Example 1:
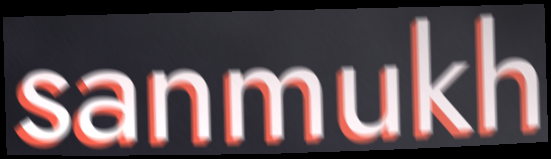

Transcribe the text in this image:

sanmukh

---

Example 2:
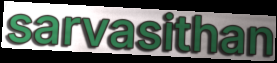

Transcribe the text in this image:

sarvasithan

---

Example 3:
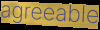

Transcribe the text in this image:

agreeable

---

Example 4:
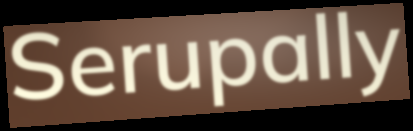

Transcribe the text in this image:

Serupally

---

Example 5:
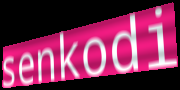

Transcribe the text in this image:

senkodi